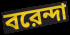
বরেন্দা